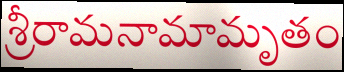
శ్రీరామనామామృతం